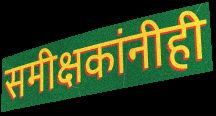
समीक्षकांनीही